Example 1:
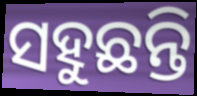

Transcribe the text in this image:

ସହୁଛନ୍ତି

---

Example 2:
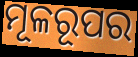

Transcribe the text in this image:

ମୂଳରୂପର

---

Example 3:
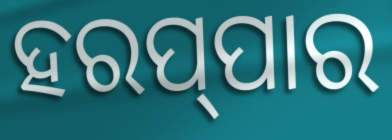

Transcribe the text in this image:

ହରପ୍‌ପାର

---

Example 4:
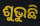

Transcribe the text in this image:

ଶୁଭୁଛି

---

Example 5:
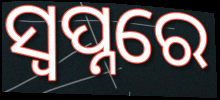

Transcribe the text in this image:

ସ୍ୱପ୍ନରେ